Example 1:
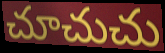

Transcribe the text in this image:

చూచుచు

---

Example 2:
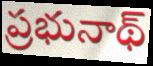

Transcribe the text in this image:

ప్రభునాథ్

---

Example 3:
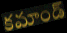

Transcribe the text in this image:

కమాండ్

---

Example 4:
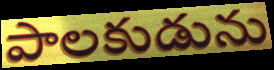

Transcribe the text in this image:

పాలకుడును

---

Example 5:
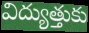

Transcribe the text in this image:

విద్యుత్తుకు